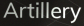
Artillery